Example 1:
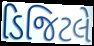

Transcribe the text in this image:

ડિજિટલે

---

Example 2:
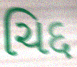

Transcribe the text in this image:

ચિદ્દ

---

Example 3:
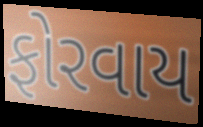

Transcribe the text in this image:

ફોરવાય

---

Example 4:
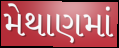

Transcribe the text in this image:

મેથાણમાં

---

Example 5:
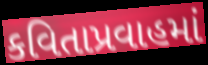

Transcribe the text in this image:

કવિતાપ્રવાહમાં